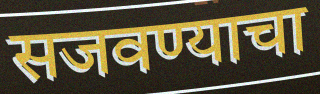
सजवण्याचा